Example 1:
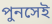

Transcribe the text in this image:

পুনসেই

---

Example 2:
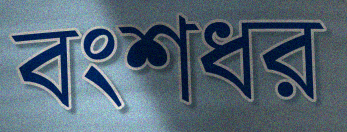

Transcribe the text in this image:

বংশধর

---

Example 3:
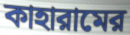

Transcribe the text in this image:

কাহারামের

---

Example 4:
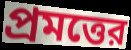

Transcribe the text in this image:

প্রমত্তের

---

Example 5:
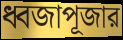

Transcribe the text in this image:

ধ্বজাপূজার